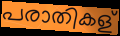
പരാതികള്